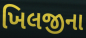
ખિલજીના